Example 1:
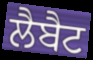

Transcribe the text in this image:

ਲੈਬੈਟ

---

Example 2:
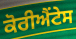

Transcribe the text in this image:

ਕੋਰੀਐਂਟੇਸ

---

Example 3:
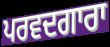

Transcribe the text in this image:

ਪਰਵਦਗਾਰਾ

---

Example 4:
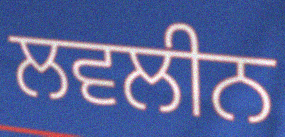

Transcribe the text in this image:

ਲਵਲੀਨ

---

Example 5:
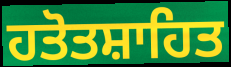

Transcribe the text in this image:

ਹਤੋਤਸ਼ਾਹਿਤ